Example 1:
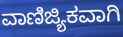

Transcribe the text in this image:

ವಾಣಿಜ್ಯಿಕವಾಗಿ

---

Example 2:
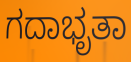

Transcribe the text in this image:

ಗದಾಭೃತಾ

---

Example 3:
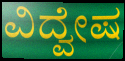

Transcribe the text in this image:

ವಿದ್ವೇಷ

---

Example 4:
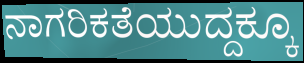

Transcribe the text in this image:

ನಾಗರಿಕತೆಯುದ್ದಕ್ಕೂ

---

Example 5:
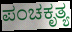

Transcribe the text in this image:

ಪಂಚಕೃತ್ಯ